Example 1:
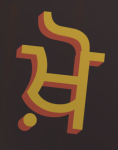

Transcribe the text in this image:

ਖ਼ੋ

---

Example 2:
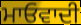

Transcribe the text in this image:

ਮਾਓਵਾਦੀ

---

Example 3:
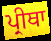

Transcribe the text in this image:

ਪ੍ਰੀਥਾ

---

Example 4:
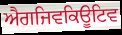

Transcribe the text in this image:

ਐਗਜਿਵਕਿਊਟਿਵ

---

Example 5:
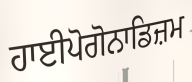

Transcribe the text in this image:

ਹਾਈਪੋਗੋਨਾਡਿਜ਼ਮ